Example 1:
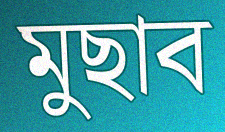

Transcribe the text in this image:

মুছাব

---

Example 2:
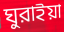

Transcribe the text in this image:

ঘুরাইয়া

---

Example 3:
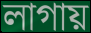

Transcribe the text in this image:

লাগায়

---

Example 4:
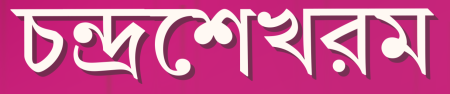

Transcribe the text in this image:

চন্দ্রশেখরম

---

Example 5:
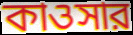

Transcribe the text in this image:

কাওসার